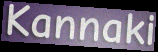
Kannaki